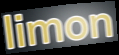
limon